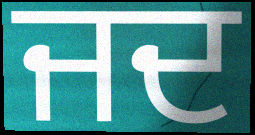
ਜਦ